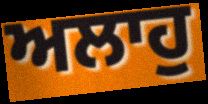
ਅਲਾਹੁ